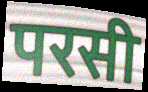
परसी